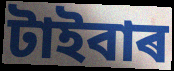
টাইবাৰ